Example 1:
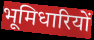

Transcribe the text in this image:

भूमिधारियों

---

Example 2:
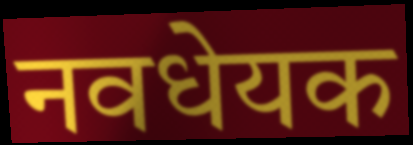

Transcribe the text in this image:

नवधेयक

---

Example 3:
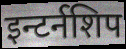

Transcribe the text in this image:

इन्टर्नशिप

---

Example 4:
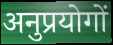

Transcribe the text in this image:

अनुप्रयोगों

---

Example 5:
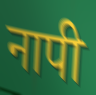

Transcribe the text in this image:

नापी